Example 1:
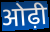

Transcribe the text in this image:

ओढ़ी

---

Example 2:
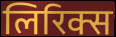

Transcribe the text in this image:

लिरिक्स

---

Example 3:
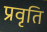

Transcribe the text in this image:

प्रवृति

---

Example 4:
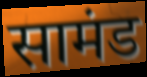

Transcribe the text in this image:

सामंड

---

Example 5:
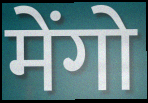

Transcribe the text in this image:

मेंगो